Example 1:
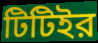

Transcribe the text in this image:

টিটিইর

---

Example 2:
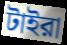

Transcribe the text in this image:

টাইরা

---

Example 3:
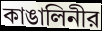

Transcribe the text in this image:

কাঙালিনীর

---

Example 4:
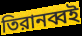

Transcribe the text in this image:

তিরানব্বই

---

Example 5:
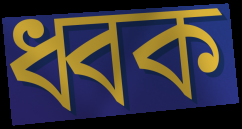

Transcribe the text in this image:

ধ্বক